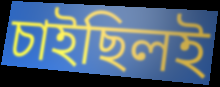
চাইছিলই